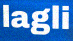
lagli